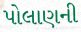
પોલાણની